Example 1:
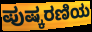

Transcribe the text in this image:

ಪುಷ್ಕರಣಿಯ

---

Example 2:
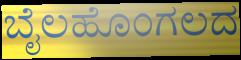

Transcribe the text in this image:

ಬೈಲಹೊಂಗಲದ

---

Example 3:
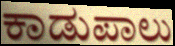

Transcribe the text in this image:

ಕಾಡುಪಾಲು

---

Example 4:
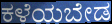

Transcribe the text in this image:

ಕಳೆಯಬೇಡ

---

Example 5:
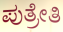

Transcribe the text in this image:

ಪುತ್ರೇತಿ